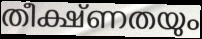
തീക്ഷ്‌ണതയും